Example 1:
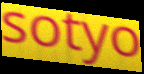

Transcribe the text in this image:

sotyo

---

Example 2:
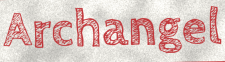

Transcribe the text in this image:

Archangel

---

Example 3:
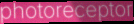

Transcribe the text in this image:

photoreceptor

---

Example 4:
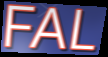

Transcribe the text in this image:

FAL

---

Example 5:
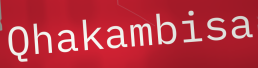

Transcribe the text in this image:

Qhakambisa